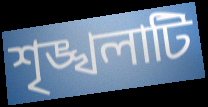
শৃঙ্খলাটি